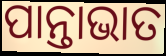
ପାନ୍ତାଭାତ